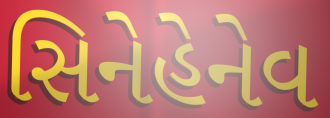
સિનેહેનેવ